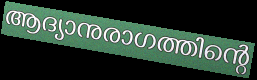
ആദ്യാനുരാഗത്തിന്റെ